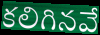
కలిగినవే